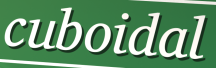
cuboidal